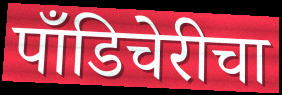
पाँडिचेरीचा